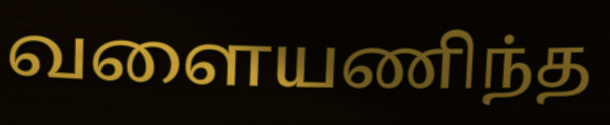
வளையணிந்த